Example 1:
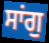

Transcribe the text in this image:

ਸਾਂਗੁ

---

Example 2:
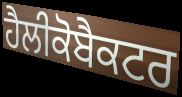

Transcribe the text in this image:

ਹੈਲੀਕੋਬੈਕਟਰ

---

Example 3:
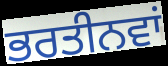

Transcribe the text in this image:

ਭਰਤੀਨਵਾਂ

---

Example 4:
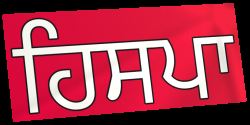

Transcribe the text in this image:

ਹਿਸਪਾ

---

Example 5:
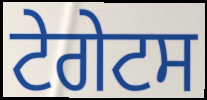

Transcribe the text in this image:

ਟੇਗੇਟਸ